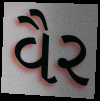
વૈર